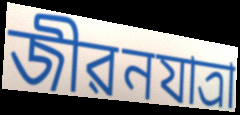
জীৱনযাত্ৰা